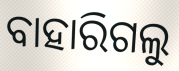
ବାହାରିଗଲୁ